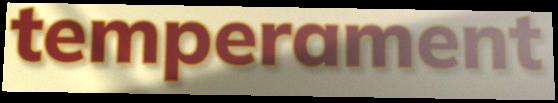
temperament